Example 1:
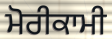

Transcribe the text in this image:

ਮੋਰੀਕਾਮੀ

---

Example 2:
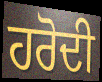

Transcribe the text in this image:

ਹਰੋਦੀ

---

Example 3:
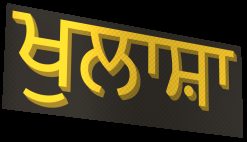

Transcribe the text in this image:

ਖੁਲਾਸ਼ਾ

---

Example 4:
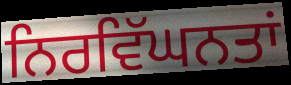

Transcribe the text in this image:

ਨਿਰਵਿੱਘਨਤਾਂ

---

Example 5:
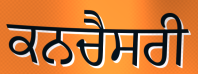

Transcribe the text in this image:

ਕਨਚੈਸਰੀ